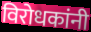
विरोधकांनी